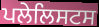
ਪਲੇਲਿਸਟਸ